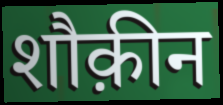
शौक़ीन